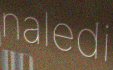
naledi